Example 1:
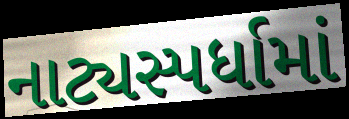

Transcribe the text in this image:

નાટ્યસ્પર્ધામાં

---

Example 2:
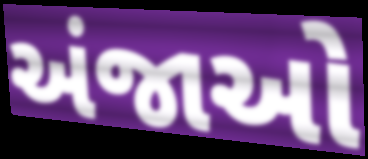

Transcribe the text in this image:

અંજાઓ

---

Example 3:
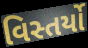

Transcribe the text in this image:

વિસ્તર્યો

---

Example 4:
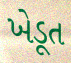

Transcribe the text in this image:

ખેડૂત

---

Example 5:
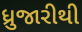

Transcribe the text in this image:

ધ્રુજારીથી